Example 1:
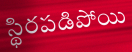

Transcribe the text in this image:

స్థిరపడిపోయి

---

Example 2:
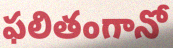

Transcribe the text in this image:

ఫలితంగానో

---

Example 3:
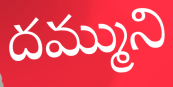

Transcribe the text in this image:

దమ్ముని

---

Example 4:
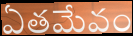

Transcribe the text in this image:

ఏతమేవం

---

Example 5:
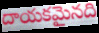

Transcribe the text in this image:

దాయకమైనది